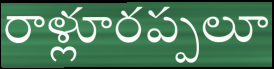
రాళ్లూరప్పలూ